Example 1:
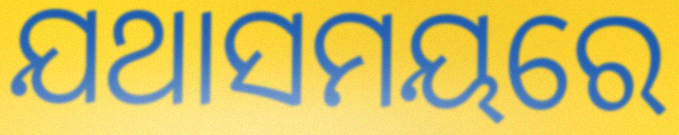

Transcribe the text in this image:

ଯଥାସମୟରେ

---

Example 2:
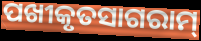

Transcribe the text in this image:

ପଖୀକୃତସାଗରାମ୍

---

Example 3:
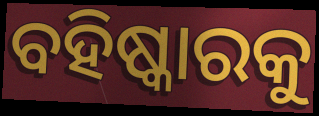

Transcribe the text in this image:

ବହିଷ୍କାରକୁ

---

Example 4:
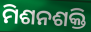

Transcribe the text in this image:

ମିଶନଶକ୍ତି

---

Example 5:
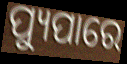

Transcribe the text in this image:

ପ୍ୟୁପାରେ